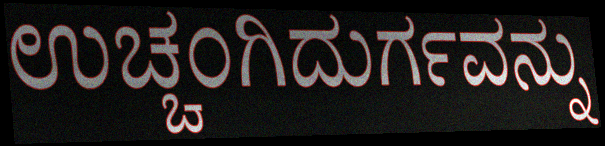
ಉಚ್ಚಂಗಿದುರ್ಗವನ್ನು